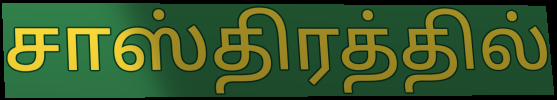
சாஸ்திரத்தில்